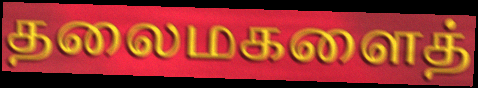
தலைமகளைத்